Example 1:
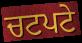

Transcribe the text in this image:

ਚਟਪਟੇ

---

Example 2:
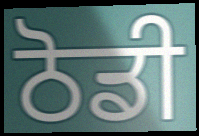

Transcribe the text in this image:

ਠੋਡੀ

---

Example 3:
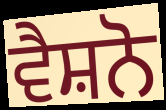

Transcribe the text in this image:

ਵੈਸ਼ਨੋ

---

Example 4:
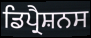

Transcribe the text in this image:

ਡਿਪ੍ਰੈਸ਼ਨਸ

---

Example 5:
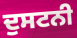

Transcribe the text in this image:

ਦੁਸਟਨੀ